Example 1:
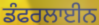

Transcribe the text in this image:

ਡੰਫਰਲਾਈਨ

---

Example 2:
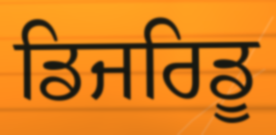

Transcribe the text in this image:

ਡਿਜਰਿਡੂ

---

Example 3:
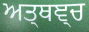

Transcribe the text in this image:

ਅਤ੍ਥਞ੍ਚ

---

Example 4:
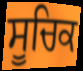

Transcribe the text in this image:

ਸੂਚਿਕ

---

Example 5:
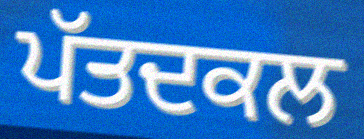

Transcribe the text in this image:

ਪੱਤਦਕਲ